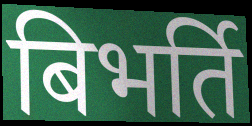
बिभर्ति